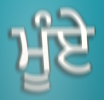
ਮੂੰਏ